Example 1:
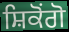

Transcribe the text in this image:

ਸ਼ਿਕੋਂਗੋ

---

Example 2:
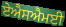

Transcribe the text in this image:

ਏਐਸਐਮਈ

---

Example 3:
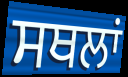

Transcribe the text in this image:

ਸਥਲਾਂ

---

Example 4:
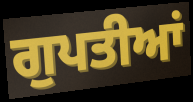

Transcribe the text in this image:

ਗੁਪਤੀਆਂ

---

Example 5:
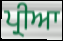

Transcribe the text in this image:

ਪ੍ਰੀਆ